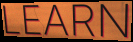
LEARN